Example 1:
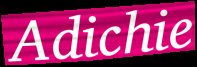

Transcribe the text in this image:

Adichie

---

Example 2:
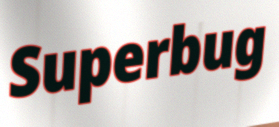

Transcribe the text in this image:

Superbug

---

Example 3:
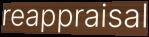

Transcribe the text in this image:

reappraisal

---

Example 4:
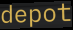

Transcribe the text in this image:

depot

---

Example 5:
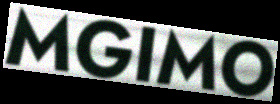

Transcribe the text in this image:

MGIMO